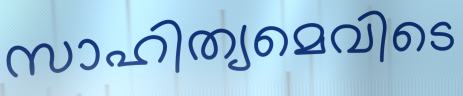
സാഹിത്യമെവിടെ